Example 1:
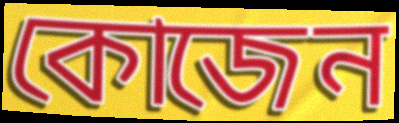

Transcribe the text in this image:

কোজেন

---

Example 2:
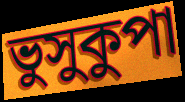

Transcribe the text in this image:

ভুসুকুপা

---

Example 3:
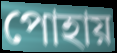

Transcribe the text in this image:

পোহায়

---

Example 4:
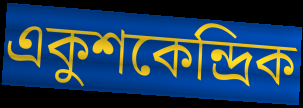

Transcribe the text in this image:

একুশকেন্দ্রিক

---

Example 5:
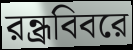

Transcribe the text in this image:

রন্ধ্রবিবরে